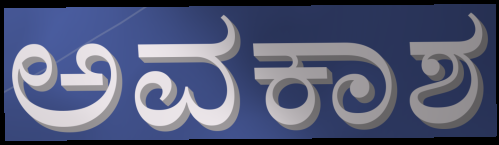
ಅವಕಾಶ